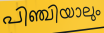
പിഞ്ചിയാലും